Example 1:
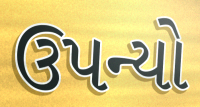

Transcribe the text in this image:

ઉપન્યો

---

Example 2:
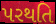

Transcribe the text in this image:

પરથતિ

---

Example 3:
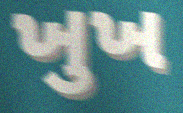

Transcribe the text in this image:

ખુખ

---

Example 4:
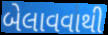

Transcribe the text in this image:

બેલાવવાથી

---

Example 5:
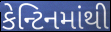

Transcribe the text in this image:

કેન્ટિનમાંથી